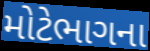
મોટેભાગના